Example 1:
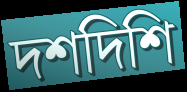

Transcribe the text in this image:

দশদিশি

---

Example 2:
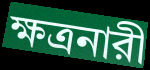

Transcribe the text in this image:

ক্ষত্রনারী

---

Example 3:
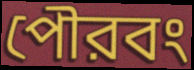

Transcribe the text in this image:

পৌরবং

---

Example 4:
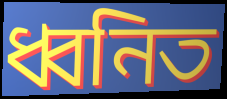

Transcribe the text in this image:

ধ্বনিত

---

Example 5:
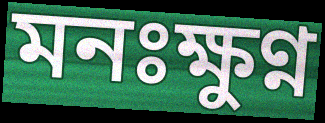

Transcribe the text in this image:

মনঃক্ষুণ্ন